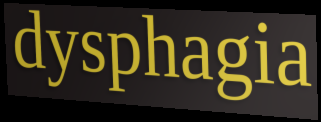
dysphagia